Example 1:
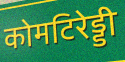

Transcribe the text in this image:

कोमटिरेड्डी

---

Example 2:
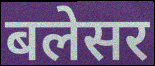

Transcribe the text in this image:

बलेसर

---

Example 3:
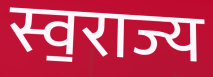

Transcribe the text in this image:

स्व॒राज्य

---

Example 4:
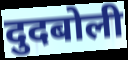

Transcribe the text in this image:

दुदबोली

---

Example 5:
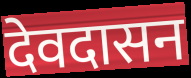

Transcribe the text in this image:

देवदासन